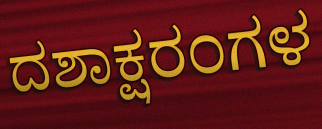
ದಶಾಕ್ಷರಂಗಳ